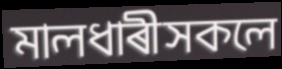
মালধাৰীসকলে